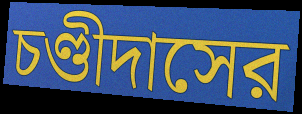
চণ্ডীদাসের